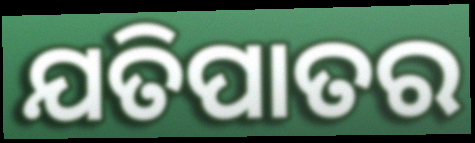
ଯତିପାତର